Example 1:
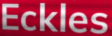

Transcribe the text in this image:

Eckles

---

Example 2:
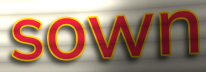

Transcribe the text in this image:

sown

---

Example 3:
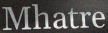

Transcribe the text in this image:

Mhatre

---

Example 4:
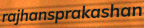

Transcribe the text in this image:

rajhansprakashan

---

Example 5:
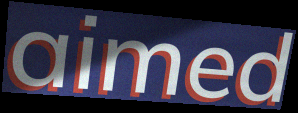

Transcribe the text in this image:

aimed